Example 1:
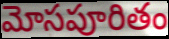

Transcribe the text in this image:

మోసపూరితం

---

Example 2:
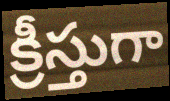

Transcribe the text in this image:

క్రీస్తుగా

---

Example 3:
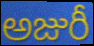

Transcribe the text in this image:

అజురీ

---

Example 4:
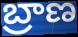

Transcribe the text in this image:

బ్రాణ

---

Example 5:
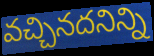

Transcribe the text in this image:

వచ్చినదనిన్ని